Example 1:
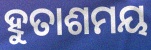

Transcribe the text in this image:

ହୁତାଶମୟ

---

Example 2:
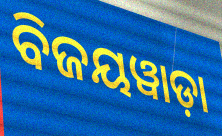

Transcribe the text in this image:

ବିଜୟୱାଡ଼ା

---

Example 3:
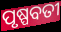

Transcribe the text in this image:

ପୃଷ୍ପବତୀ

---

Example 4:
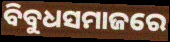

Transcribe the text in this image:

ବିବୁଧସମାଜରେ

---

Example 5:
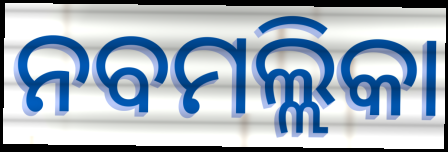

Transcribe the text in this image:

ନବମଲ୍ଲିକା